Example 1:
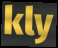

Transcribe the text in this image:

kly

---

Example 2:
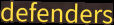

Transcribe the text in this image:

defenders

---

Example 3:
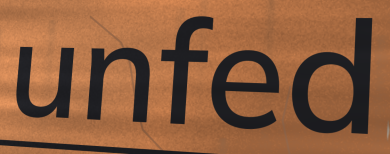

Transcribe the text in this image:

unfed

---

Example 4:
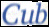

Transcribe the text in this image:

Cub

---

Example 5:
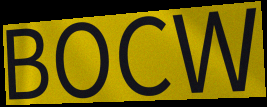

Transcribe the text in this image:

BOCW